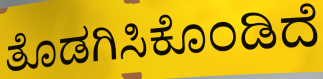
ತೊಡಗಿಸಿಕೊಂಡಿದೆ